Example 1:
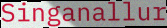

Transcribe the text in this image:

Singanallur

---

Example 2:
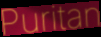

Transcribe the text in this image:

Puritan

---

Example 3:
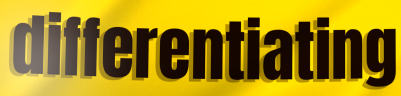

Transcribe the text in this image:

differentiating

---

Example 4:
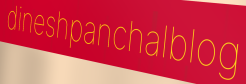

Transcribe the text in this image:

dineshpanchalblog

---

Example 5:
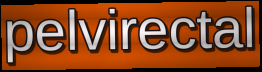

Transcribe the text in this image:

pelvirectal